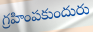
గ్రహింపకుందురు